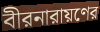
বীরনারায়ণের